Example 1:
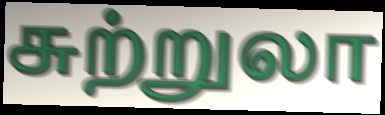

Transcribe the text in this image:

சுற்றுலா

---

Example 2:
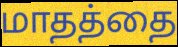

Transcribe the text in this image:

மாதத்தை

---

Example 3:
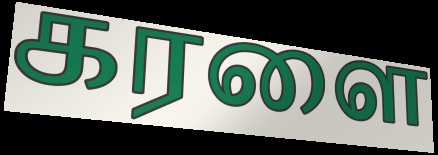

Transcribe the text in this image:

கரளை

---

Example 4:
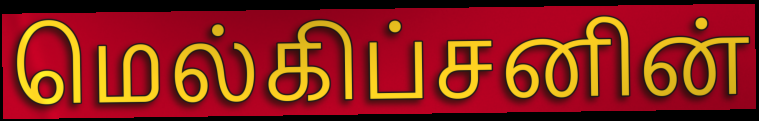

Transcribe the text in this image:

மெல்கிப்சனின்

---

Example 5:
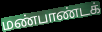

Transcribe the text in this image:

மண்பாண்டக்